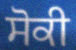
ਸੋਕੀ